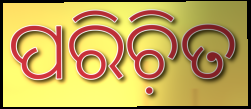
ପରିଚ଼ିତ